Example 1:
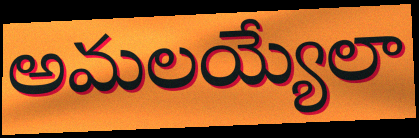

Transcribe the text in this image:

అమలయ్యేలా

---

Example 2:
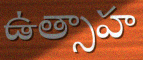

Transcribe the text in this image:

ఉత్సాహ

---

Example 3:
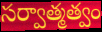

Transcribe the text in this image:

సర్వాత్మత్వం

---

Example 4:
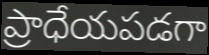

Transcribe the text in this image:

ప్రాధేయపడగా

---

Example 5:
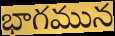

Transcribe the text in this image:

భాగమున